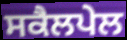
ਸਕੈਲਪੇਲ